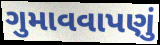
ગુમાવવાપણું